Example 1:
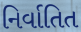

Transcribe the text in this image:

નિર્વાતિત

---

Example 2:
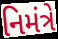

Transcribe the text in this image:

નિમંત્રે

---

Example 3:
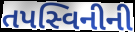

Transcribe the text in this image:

તપસ્વિનીની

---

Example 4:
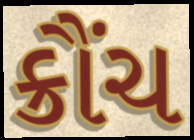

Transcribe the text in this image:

ક્રૌંચ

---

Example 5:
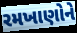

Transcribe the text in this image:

રમખાણોને